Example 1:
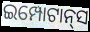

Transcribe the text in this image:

ଇମ୍ପୋଟାନ୍‌ସ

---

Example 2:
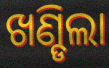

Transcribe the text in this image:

ଖଣ୍ଡିଲା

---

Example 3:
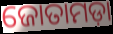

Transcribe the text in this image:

ଜୋତାମଡ଼ା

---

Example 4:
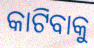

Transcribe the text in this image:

କାଟିବାକୁ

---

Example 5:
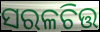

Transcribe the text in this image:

ସରଳଚିତ୍ତ